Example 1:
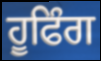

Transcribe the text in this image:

ਹੂਫਿੰਗ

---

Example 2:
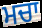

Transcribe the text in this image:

ਮਚਾ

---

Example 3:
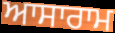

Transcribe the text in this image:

ਆਸਾਰਾਮ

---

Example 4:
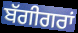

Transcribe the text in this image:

ਬੱਗੀਗਰਾਂ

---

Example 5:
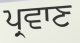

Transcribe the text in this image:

ਪ੍ਰਵਾਣ